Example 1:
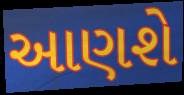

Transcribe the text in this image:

આણશે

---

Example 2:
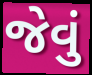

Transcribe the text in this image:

જેવું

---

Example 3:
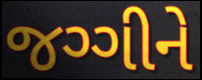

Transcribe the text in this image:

જગ્ગીને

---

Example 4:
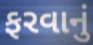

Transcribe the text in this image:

ફરવાનું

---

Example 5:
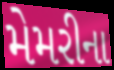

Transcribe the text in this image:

મેમરીના